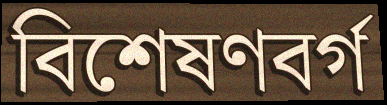
বিশেষণবর্গ